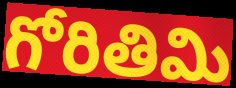
గోరితిమి